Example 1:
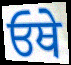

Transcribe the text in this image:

ਓਥੇ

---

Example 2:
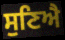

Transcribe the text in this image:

ਸੁਣਿਐ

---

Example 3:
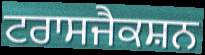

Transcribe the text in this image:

ਟਰਾਸਜੈਕਸ਼ਨ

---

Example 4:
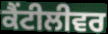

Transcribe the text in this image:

ਕੈਂਟੀਲੀਵਰ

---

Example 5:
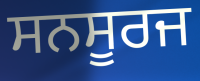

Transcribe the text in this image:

ਸਨਸੂਰਜ